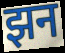
झन